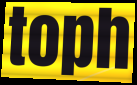
toph